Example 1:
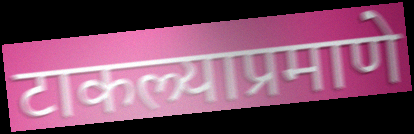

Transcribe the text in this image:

टाकल्याप्रमाणे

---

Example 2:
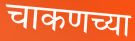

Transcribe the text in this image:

चाकणच्या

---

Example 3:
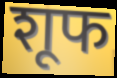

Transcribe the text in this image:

शूफ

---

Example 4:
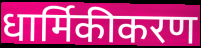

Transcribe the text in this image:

धार्मिकीकरण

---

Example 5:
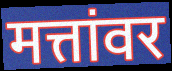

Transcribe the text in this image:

मत्तांवर